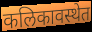
कलिकावस्थेत